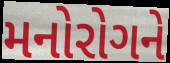
મનોરોગને